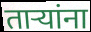
ताऱ्यांना